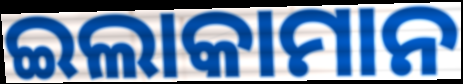
ଇଲାକାମାନ